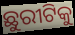
ଛୁରୀଟିକୁ